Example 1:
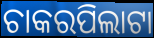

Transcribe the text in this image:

ଚାକରପିଲାଟା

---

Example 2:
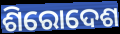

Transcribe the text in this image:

ଶିରୋଦେଶ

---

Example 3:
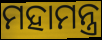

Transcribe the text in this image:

ମହାମନ୍ତ୍ର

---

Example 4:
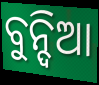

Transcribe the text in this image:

ବୁନ୍ଦିଆ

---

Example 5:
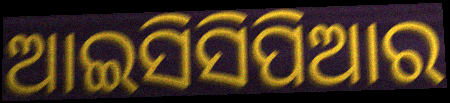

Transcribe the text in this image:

ଆଇସିସିପିଆର